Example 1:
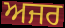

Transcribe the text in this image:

ਅਜਰ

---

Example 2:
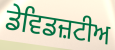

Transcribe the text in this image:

ਡੇਵਿਡਜ਼ਟੀਅ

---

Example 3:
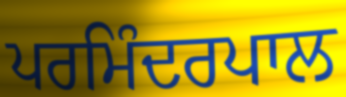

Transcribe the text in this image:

ਪਰਮਿੰਦਰਪਾਲ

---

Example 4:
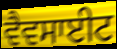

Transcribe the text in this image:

ਵੈਵਸਾਈਟ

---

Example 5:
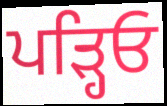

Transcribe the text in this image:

ਪੜ੍ਹਿਓ